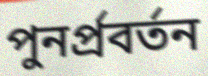
পুনর্প্রবর্তন